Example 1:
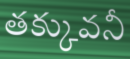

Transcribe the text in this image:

తక్కువనీ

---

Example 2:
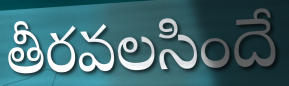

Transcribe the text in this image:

తీరవలసిందే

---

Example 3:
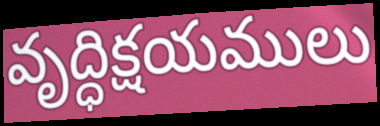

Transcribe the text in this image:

వృద్ధిక్షయములు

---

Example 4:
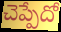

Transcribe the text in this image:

చెప్పేదో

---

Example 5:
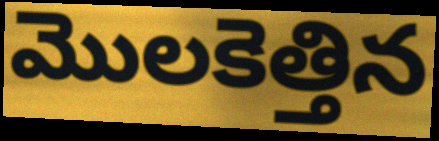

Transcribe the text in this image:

మొలకెత్తిన